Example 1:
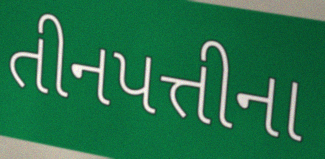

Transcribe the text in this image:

તીનપત્તીના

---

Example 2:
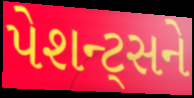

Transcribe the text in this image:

પેશન્ટ્સને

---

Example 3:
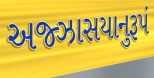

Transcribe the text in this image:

અજ્ઝાસયાનુરૂપં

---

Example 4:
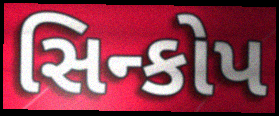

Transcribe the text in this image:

સિન્કોપ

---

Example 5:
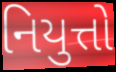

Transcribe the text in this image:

નિયુત્તો